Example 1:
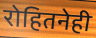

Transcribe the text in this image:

रोहितनेही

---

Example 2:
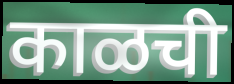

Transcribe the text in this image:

काळची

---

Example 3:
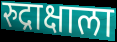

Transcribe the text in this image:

रुद्राक्षाला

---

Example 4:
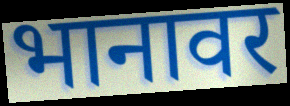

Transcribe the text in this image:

भानावर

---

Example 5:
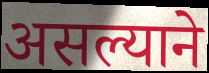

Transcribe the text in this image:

असल्‍याने